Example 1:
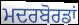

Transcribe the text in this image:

ਮਦਰਬੋਰਡਾਂ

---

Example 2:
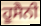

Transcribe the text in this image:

ਹੂਸੈਨੀ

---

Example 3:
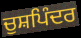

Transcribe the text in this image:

ਚੁਸ਼ਪਿੰਦਰ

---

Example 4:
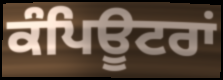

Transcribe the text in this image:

ਕੰਪਿਊਟਰਾਂ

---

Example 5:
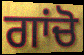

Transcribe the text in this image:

ਗਾਂਚੋ